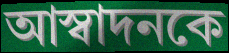
আস্বাদনকে